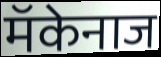
मॅकेनाज